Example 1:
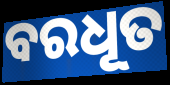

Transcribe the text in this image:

ବରଧୂତ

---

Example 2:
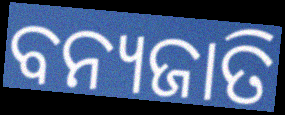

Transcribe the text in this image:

ବନ୍ୟଜାତି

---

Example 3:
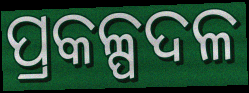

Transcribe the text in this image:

ପ୍ରକଳ୍ପଦଳ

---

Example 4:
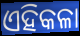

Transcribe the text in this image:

ଏହିକଳା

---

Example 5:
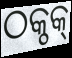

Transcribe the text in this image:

ଠକ୍ଠକ୍